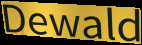
Dewald